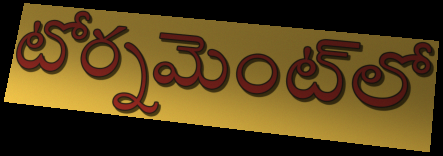
టోర్నమెంట్‌లో